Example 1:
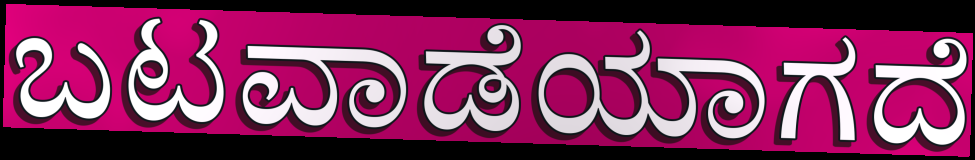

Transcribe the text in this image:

ಬಟವಾಡೆಯಾಗದೆ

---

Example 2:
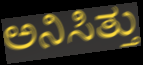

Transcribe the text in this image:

ಅನಿಸಿತ್ತು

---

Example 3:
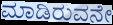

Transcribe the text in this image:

ಮಾಡಿರುವನೇ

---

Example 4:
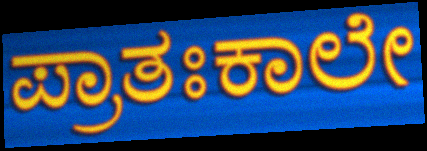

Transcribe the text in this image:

ಪ್ರಾತಃಕಾಲೇ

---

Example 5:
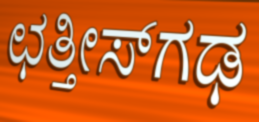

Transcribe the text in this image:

ಛತ್ತೀಸ್‌ಗಢ